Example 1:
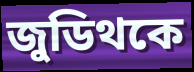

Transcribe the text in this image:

জুডিথকে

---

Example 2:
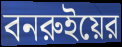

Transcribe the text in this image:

বনরুইয়ের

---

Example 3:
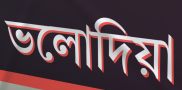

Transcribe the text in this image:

ভলোদিয়া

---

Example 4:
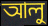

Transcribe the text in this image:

আলু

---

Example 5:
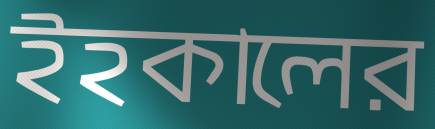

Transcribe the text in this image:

ইহকালের